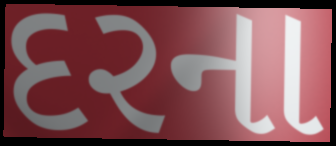
દરના